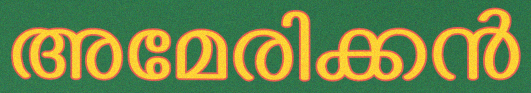
അമേരിക്കൻ